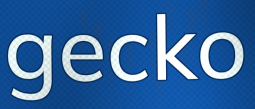
gecko